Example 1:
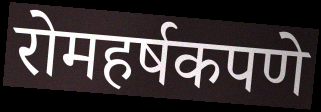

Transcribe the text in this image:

रोमहर्षकपणे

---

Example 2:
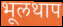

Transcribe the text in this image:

भूलथाप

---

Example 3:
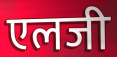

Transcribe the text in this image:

एलजी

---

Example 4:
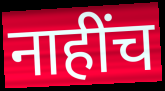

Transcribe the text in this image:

नाहींच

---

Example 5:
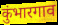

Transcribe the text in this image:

कुंभारगाव